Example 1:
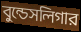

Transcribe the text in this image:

বুন্ডেসলিগার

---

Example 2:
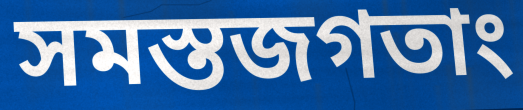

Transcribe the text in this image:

সমস্তজগতাং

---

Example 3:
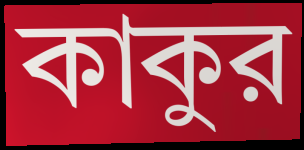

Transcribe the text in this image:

কাকুর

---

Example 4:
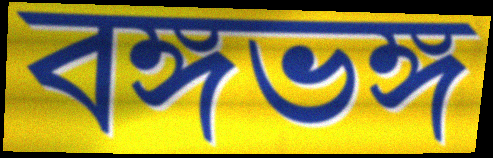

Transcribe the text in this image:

বঙ্গভঙ্গ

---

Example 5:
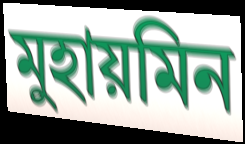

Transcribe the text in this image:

মুহায়মিন